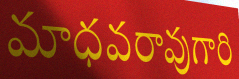
మాధవరావుగారి